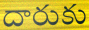
దారుకు